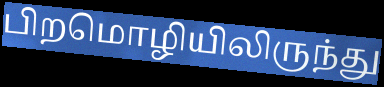
பிறமொழியிலிருந்து